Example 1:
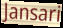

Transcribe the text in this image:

Jansari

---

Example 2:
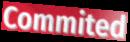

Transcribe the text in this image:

Commited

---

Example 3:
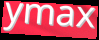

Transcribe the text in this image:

ymax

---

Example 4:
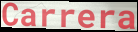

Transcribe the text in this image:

Carrera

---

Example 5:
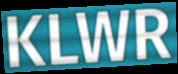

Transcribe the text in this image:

KLWR